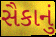
સૈકાનું